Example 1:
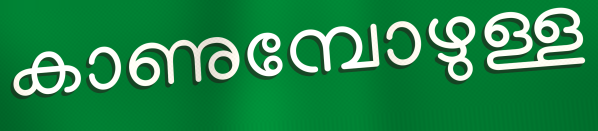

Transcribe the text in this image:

കാണുമ്പോഴുള്ള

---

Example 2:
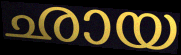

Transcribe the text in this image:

ഛായ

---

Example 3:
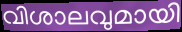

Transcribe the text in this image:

വിശാലവുമായി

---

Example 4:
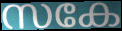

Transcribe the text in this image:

സകേ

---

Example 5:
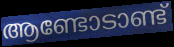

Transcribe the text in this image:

ആണ്ടോടാണ്ട്